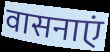
वासनाएं